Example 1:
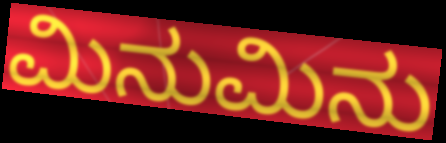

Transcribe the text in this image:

ಮಿನುಮಿನು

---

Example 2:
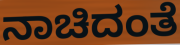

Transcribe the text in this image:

ನಾಚಿದಂತೆ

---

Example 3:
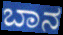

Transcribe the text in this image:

ಬಾನ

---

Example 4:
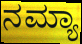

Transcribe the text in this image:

ನಮ್ಯಾ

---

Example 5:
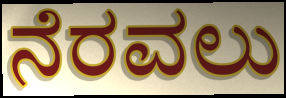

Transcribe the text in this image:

ನೆರವಲು